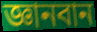
জ্ঞানবান